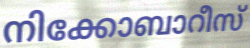
നിക്കോബാറീസ്